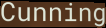
Cunning